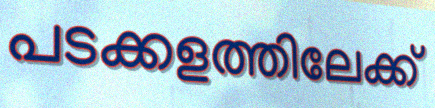
പടക്കളത്തിലേക്ക്